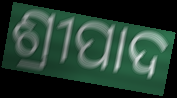
ଶ୍ରୀପାଦ